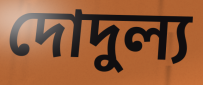
দোদুল্য